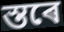
স্তৰে